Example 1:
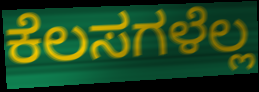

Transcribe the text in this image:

ಕೆಲಸಗಳೆಲ್ಲ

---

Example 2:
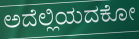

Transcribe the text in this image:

ಅದೆಲ್ಲಿಯದಕೋ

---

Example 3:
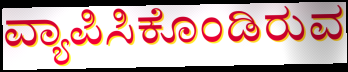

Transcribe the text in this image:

ವ್ಯಾಪಿಸಿಕೊಂಡಿರುವ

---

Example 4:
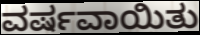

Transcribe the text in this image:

ವರ್ಷವಾಯಿತು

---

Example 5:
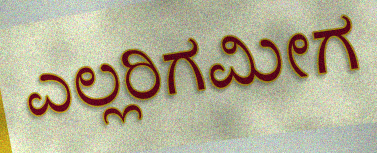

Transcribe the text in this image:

ಎಲ್ಲರಿಗಮೀಗ